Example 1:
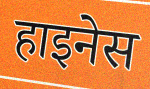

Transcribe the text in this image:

हाइनेस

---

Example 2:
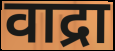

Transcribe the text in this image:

वाद्रा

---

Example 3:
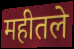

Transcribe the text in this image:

महीतले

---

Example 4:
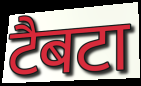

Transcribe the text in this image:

टैबटा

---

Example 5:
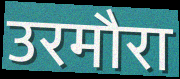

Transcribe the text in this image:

उरमौरा